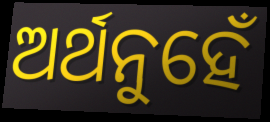
ଅର୍ଥନୁହେଁ